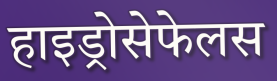
हाइड्रोसेफेलस